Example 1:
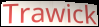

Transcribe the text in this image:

Trawick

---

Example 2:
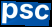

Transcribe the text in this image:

psc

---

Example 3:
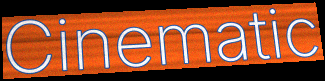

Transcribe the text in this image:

Cinematic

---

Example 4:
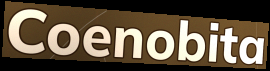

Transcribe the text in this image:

Coenobita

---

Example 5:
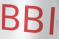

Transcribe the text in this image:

BBI